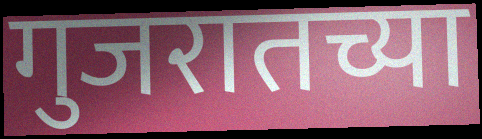
गुजरातच्या